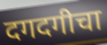
दगदगीचा